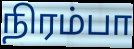
நிரம்பா